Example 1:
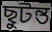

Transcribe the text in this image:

ছুটন্ত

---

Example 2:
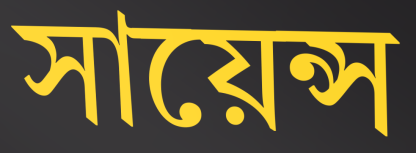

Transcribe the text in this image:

সায়েন্স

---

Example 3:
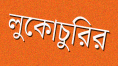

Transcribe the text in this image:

লুকোচুরির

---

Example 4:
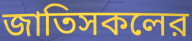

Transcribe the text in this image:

জাতিসকলের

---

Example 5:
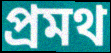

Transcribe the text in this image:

প্রমথ